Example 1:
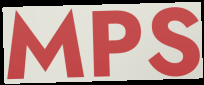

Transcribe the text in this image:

MPS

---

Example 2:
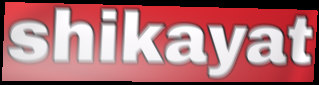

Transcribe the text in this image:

shikayat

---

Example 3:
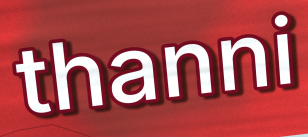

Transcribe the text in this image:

thanni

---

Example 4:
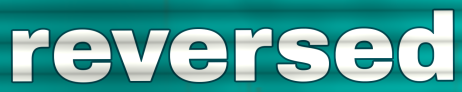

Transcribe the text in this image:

reversed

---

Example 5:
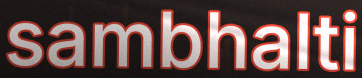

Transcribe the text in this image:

sambhalti